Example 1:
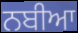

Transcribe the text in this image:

ਨਬੀਆ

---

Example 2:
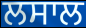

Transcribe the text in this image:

ਲਸਾਲ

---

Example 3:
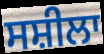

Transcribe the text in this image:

ਸਸ਼ੀਲਾ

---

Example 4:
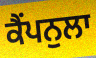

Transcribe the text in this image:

ਕੈਂਪਨੁਲਾ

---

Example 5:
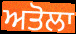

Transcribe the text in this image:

ਅਤੋਲਾ